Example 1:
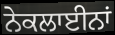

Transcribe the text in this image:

ਨੇਕਲਾਈਨਾਂ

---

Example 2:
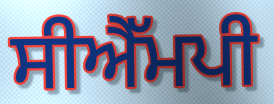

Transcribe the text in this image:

ਸੀਐੱਮਪੀ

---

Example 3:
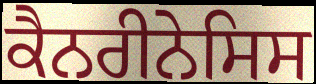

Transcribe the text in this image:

ਕੈਨਰੀਨੇਸਿਸ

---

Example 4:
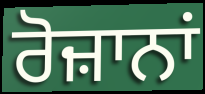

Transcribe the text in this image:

ਰੋਜ਼ਾਨਾਂ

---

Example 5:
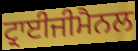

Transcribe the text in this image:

ਟ੍ਰਾਈਜੀਮੈਨਲ